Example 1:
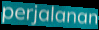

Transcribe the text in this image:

perjalanan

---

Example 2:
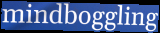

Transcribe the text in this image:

mindboggling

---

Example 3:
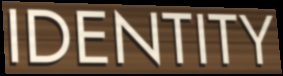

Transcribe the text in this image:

IDENTITY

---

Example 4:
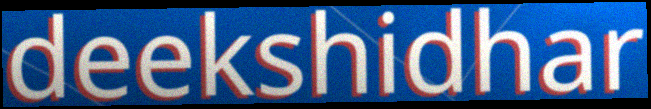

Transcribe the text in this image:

deekshidhar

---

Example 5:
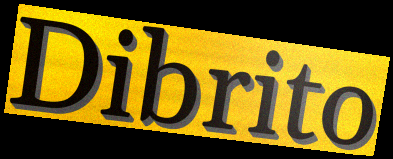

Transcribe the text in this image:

Dibrito